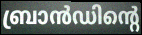
ബ്രാൻഡിന്റെ